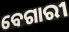
ବେଗାରୀ